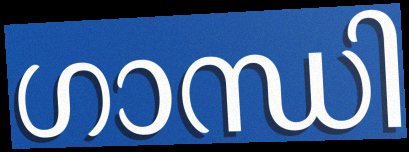
ഗാന്ധി